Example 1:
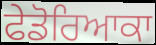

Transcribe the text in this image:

ਫੇਡੋਰਿਆਕਾ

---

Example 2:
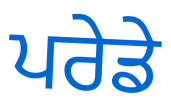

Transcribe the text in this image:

ਪਰੇਡੇ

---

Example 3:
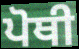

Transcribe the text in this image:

ਪੋਥੀ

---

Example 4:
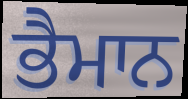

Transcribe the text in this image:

ਭੈਮਾਨ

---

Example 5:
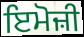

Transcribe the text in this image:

ਇਮੋਜ਼ੀ